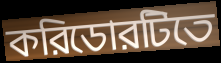
করিডোরটিতে